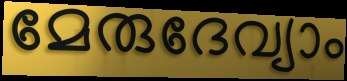
മേരുദേവ്യാം